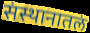
संस्थानातलं